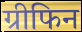
ग्रीफिन